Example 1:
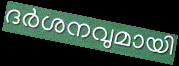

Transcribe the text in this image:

ദർശനവുമായി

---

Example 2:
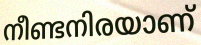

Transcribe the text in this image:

നീണ്ടനിരയാണ്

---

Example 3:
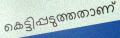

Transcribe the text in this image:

കെട്ടിപ്പടുത്തതാണ്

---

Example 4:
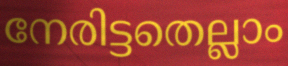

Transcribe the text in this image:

നേരിട്ടതെല്ലാം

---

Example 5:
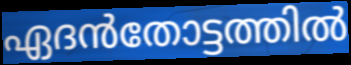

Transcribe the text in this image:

ഏദൻതോട്ടത്തിൽ